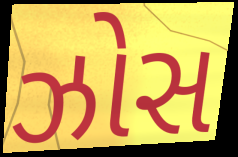
ઝોસ